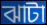
ঝাটা